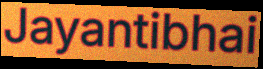
Jayantibhai